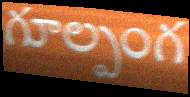
గూల్పంగ